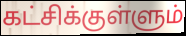
கட்சிக்குள்ளும்